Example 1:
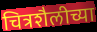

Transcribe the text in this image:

चित्रशैलीच्या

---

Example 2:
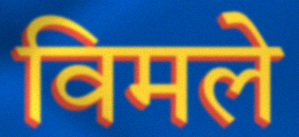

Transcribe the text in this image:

विमले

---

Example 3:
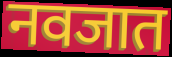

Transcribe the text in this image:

नवजात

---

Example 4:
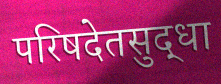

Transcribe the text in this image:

परिषदेतसुद्धा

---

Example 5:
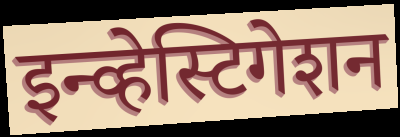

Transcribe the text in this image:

इन्व्हेस्टिगेशन